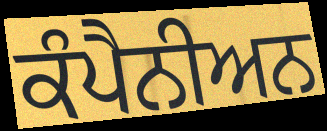
ਕੰਪੈਨੀਅਨ